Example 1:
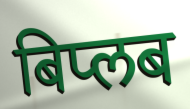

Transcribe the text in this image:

बिप्लब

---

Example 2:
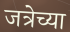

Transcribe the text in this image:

जत्रेच्या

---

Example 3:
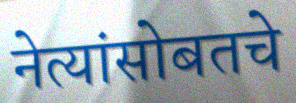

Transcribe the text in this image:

नेत्यांसोबतचे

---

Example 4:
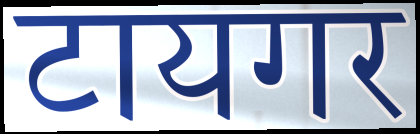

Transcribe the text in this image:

टायगर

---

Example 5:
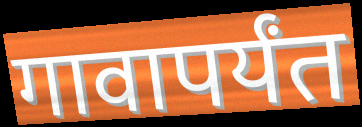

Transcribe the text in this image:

गावापर्यंत